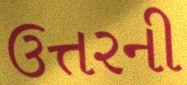
ઉત્તરની